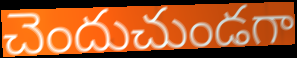
చెందుచుండగా